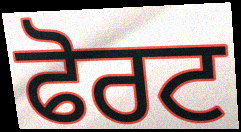
ਫੋਰਟ